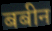
बबीन